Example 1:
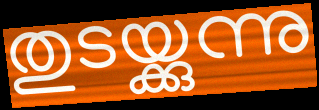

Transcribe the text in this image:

തുടയ്ക്കുന്നു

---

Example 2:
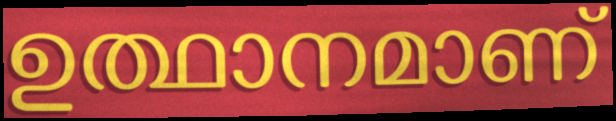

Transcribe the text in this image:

ഉത്ഥാനമാണ്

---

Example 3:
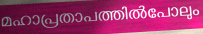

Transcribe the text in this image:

മഹാപ്രതാപത്തിൽപോലും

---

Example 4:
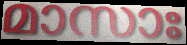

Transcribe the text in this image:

മാസാഃ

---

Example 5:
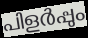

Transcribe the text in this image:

പിളർപ്പും